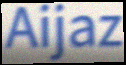
Aijaz